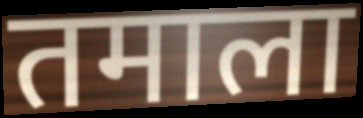
तमाला